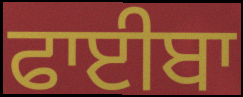
ਫਾਈਬਾ